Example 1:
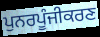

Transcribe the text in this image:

ਪੁਨਰਪੂੰਜੀਕਰਣ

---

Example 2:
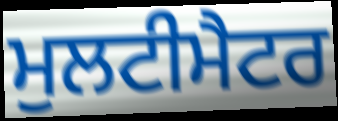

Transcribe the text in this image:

ਮੁਲਟੀਮੈਟਰ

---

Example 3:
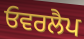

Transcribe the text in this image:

ਓਵਰਲੈਪ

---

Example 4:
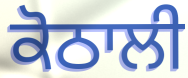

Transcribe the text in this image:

ਕੋਠਾਲੀ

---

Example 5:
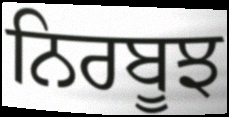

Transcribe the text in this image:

ਨਿਰਬੂਝ